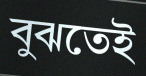
বুঝতেই